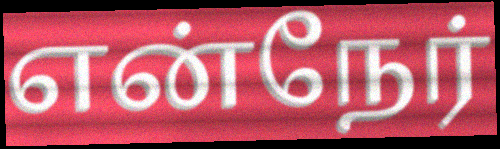
என்நேர்